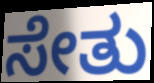
ಸೇತು